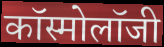
कॉस्मोलॉजी